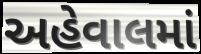
અહેવાલમાં